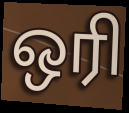
ஒரி